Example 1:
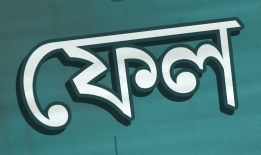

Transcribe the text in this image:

ফেল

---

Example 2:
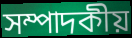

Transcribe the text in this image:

সম্পাদকীয়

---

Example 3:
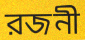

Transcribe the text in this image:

রজনী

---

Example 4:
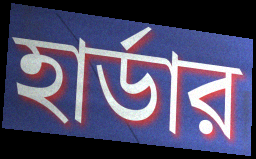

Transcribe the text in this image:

হার্ডার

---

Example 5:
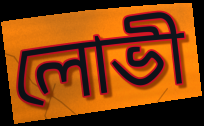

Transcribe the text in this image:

লোভী